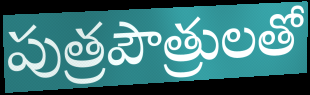
పుత్రపౌత్రులతో